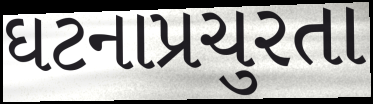
ઘટનાપ્રચુરતા